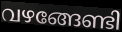
വഴങ്ങേണ്ടി